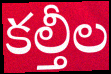
కల్తీల